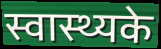
स्वास्थ्यके